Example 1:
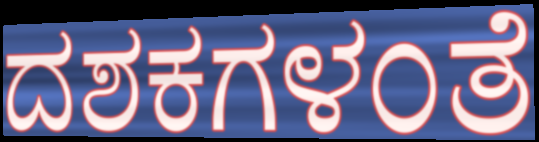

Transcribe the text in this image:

ದಶಕಗಳಂತೆ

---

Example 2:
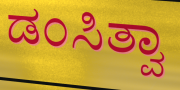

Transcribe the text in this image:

ಡಂಸಿತ್ವಾ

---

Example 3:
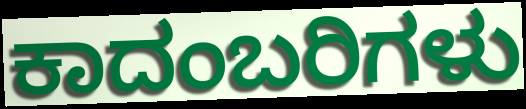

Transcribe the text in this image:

ಕಾದಂಬರಿಗಳು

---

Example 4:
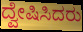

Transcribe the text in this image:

ದ್ವೇಷಿಸಿದರು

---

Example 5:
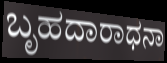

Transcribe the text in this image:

ಬೃಹದಾರಾಧನಾ